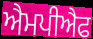
ਐਮਪੀਐਫ